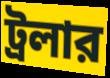
ট্রলার